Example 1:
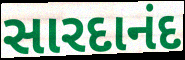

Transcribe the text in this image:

સારદાનંદ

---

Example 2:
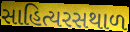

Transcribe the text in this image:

સાહિત્યરસથાળ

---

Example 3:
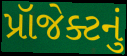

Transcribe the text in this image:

પ્રૉજેક્ટનું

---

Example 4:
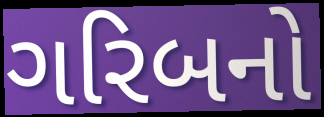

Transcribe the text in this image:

ગરિબનો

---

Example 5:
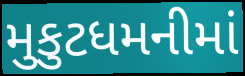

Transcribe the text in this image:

મુકુટધમનીમાં